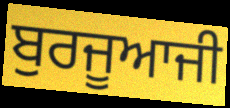
ਬੁਰਜੂਆਜੀ